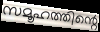
സമൂഹത്തിന്റെ